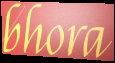
bhora